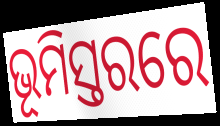
ଭୂମିସ୍ତରରେ